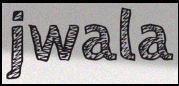
jwala